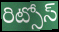
రిట్సోస్